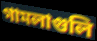
গামলাগুলি